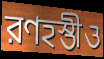
রণহস্তীও